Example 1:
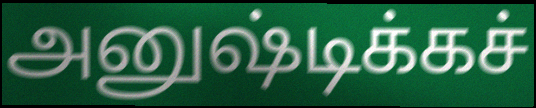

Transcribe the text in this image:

அனுஷ்டிக்கச்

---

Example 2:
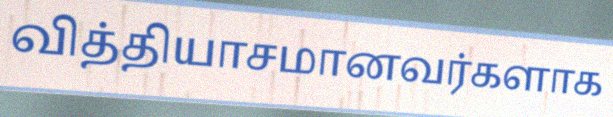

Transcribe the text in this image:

வித்தியாசமானவர்களாக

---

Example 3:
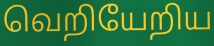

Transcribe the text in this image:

வெறியேறிய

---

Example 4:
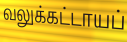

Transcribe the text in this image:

வலுக்கட்டாயப்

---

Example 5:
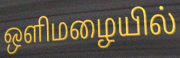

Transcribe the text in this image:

ஒளிமழையில்